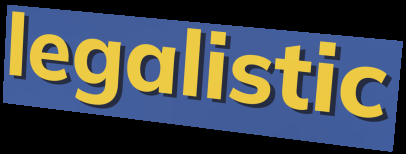
legalistic